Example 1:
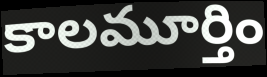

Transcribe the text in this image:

కాలమూర్తిం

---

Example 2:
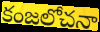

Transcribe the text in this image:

కంజలోచనా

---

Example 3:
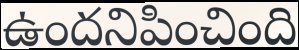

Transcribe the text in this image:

ఉందనిపించింది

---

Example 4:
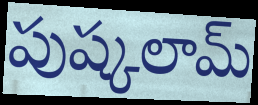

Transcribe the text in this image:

పుష్కలామ్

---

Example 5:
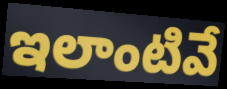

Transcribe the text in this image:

ఇలాంటివే